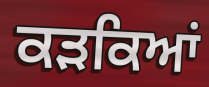
ਕੜਕਿਆਂ